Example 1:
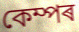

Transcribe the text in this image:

কেম্পৰ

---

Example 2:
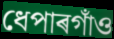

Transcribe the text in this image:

ধেপাৰগাঁও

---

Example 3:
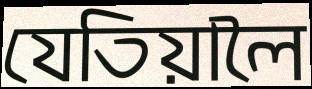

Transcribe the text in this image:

যেতিয়ালৈ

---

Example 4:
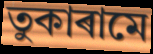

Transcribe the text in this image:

তুকাৰামে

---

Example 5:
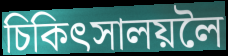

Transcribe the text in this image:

চিকিৎসালয়লৈ